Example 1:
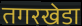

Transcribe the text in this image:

तगरखेडा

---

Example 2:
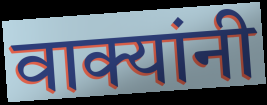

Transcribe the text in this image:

वाक्यांनी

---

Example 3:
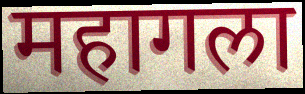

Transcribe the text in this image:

महागला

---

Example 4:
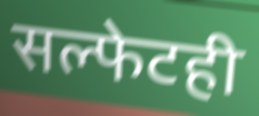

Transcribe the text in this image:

सल्फेटही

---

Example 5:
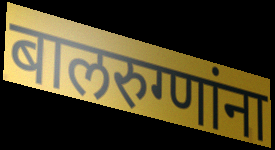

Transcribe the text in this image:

बालरुग्णांना